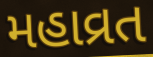
મહાવ્રત